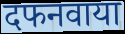
दफनवाया